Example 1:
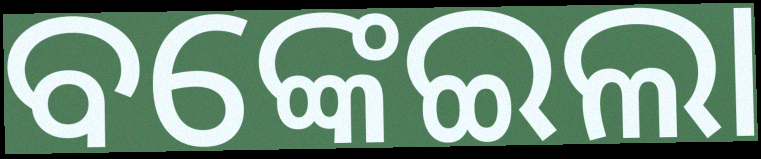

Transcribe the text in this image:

ବଙ୍କେଇଲା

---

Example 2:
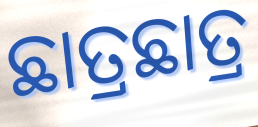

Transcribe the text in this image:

ଛାତ୍ରଛାତ୍ର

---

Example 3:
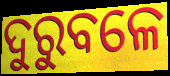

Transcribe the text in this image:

ଦୁରୁବଳେ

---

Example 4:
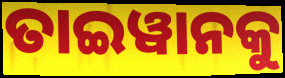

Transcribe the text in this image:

ତାଇୱାନକୁ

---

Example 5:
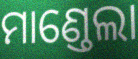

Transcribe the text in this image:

ମାଣ୍ଡେଲା